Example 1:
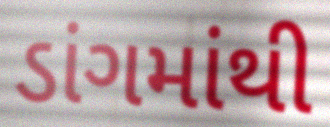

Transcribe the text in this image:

ડાંગમાંથી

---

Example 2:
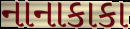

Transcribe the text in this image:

નાનાકાકા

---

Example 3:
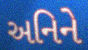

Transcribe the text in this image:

અનિને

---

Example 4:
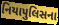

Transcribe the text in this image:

નિયાપુલિસના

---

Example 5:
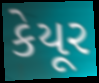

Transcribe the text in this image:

કેયૂર